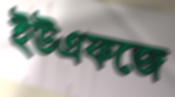
ইউএফজে